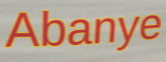
Abanye